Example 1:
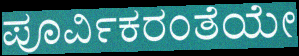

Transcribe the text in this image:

ಪೂರ್ವಿಕರಂತೆಯೇ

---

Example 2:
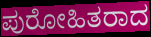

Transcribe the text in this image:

ಪುರೋಹಿತರಾದ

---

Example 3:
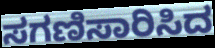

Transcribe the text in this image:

ಸಗಣಿಸಾರಿಸಿದ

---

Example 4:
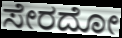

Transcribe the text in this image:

ಸೇರದೋ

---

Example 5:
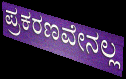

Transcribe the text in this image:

ಪ್ರಕರಣವೇನಲ್ಲ